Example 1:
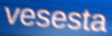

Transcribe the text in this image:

vesesta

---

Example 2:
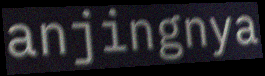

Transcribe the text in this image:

anjingnya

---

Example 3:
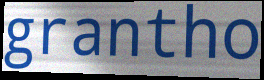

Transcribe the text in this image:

grantho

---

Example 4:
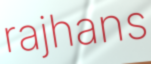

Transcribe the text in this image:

rajhans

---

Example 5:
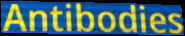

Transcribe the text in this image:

Antibodies